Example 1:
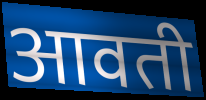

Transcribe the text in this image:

आवती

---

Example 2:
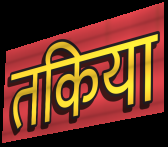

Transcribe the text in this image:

तकिया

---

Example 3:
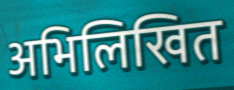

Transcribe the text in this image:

अभिलिखित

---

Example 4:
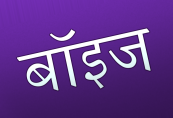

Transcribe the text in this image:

बॉइज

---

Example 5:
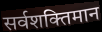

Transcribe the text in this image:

सर्वशक्‍तिमान